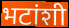
भटांशी